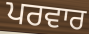
ਪਰਵਾਰ